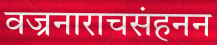
वज्रनाराचसंहनन